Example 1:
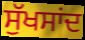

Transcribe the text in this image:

ਸੁੱਖਸਾਂਦ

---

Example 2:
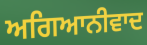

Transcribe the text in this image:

ਅਗਿਆਨੀਵਾਦ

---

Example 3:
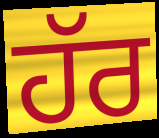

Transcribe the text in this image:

ਹੱਰ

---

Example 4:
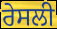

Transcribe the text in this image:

ਰੇਸਲੀ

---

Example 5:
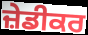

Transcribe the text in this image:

ਜ਼ੇਡੀਕਰ